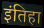
इंतिहा